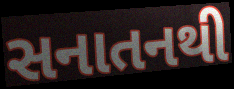
સનાતનથી